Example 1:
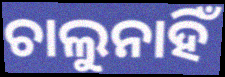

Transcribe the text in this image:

ଚାଲୁନାହିଁ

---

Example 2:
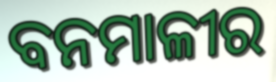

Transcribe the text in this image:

ବନମାଳୀର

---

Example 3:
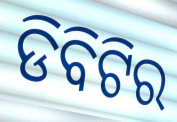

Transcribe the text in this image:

ଡିବିଟିର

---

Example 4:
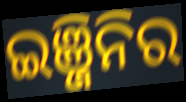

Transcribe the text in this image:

ଇଞ୍ଜିନିର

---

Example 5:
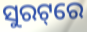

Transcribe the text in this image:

ସୁରଟ୍‌ରେ